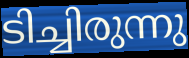
ടിച്ചിരുന്നു